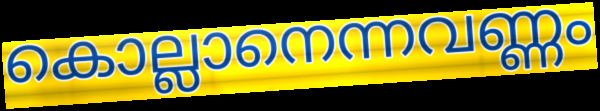
കൊല്ലാനെന്നവണ്ണം